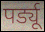
पर्ड्यू